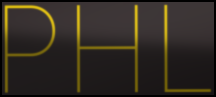
PHL